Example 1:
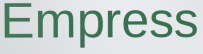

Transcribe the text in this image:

Empress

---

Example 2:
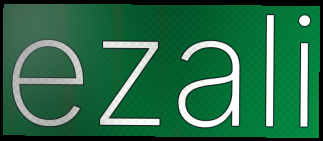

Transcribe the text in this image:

ezali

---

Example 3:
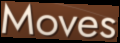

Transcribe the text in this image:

Moves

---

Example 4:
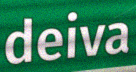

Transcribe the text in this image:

deiva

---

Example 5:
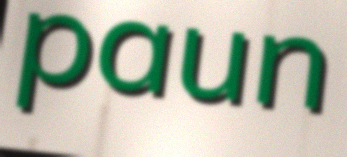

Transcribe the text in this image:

paun